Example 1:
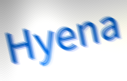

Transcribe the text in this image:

Hyena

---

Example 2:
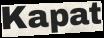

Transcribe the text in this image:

Kapat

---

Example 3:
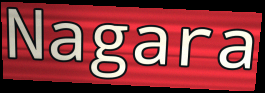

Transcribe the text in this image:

Nagara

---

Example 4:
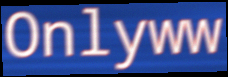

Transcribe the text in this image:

Onlyww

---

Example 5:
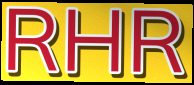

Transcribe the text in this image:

RHR